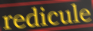
redicule